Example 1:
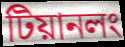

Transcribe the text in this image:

টিয়ানলং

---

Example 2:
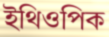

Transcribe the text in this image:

ইথিওপিক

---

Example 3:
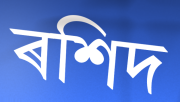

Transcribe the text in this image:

ৰশিদ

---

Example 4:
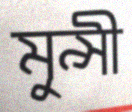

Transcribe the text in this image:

মুন্সী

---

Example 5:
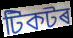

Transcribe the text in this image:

টিকটৰ